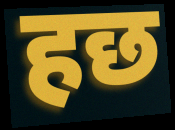
हछ